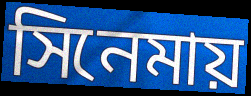
সিনেমায়